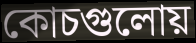
কোচগুলোয়